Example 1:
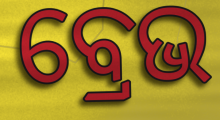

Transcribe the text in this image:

ବ୍ରେଭ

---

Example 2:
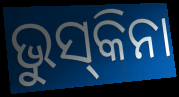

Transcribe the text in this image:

ଭୁସ୍‌କିନା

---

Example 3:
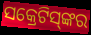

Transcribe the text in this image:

ସକ୍ରେଟିସ୍‌ଙ୍କର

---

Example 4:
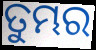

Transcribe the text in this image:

ତୁମ୍ଭର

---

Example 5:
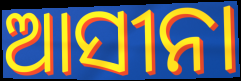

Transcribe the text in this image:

ଆସୀନା